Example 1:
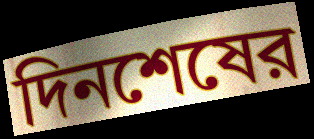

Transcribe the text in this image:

দিনশেষের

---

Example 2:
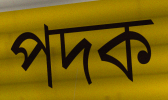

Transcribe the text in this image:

পদক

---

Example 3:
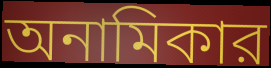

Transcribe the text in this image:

অনামিকার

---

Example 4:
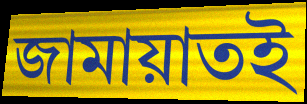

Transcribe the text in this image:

জামায়াতই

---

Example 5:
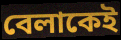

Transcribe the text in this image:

বেলাকেই